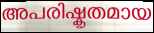
അപരിഷ്കൃതമായ